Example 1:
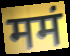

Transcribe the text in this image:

ममं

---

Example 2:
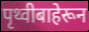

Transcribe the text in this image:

पृथ्वीबाहेरून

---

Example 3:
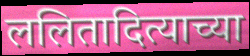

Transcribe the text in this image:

ललितादित्याच्या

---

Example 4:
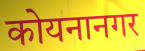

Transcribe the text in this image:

कोयनानगर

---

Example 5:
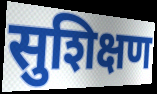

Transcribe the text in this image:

सुशिक्षण